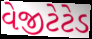
વેજીટેટેડ